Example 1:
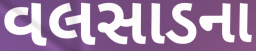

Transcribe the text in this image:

વલસાડના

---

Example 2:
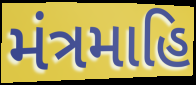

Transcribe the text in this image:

મંત્રમાહિ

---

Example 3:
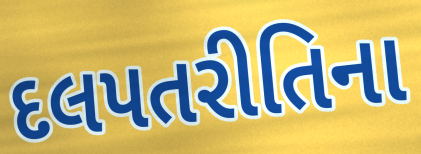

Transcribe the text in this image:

દલપતરીતિના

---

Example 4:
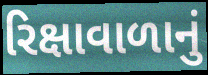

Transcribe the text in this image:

રિક્ષાવાળાનું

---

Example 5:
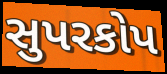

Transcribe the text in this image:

સુપરકોપ